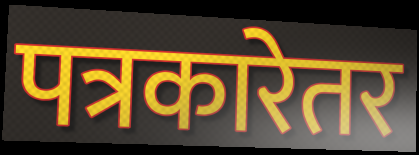
पत्रकारेतर